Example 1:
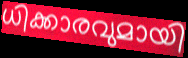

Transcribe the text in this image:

ധിക്കാരവുമായി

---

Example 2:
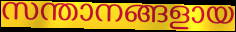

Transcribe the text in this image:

സന്താനങ്ങളായ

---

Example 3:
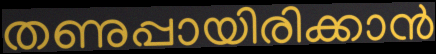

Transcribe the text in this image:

തണുപ്പായിരിക്കാൻ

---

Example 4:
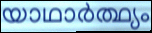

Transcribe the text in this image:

യാഥാർത്ഥ്യം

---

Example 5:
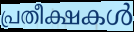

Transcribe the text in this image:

പ്രതീക്ഷകൾ